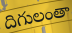
దిగులంతా